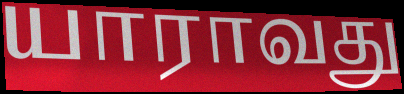
யாராவது